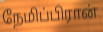
நேமிப்பிரான்